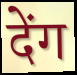
देंग